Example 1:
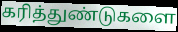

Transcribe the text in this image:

கரித்துண்டுகளை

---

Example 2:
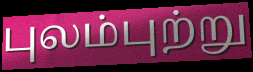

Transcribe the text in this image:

புலம்புற்று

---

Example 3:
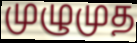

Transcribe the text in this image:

முழுமுத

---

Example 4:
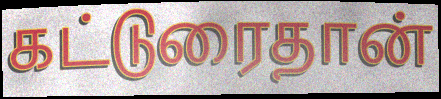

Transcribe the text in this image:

கட்டுரைதான்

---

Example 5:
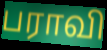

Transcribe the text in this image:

பராவி